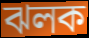
ঝলক